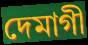
দেমাগী